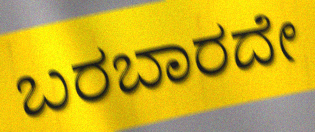
ಬರಬಾರದೇ